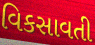
વિકસાવતી